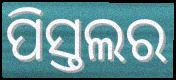
ପିସ୍ତଲର